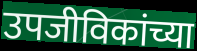
उपजीविकांच्या